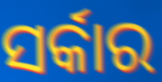
ସର୍କାର